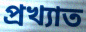
প্রখ্যাত